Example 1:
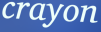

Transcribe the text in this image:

crayon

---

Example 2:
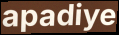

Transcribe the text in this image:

apadiye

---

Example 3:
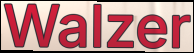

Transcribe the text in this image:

Walzer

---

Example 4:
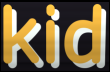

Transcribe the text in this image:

kid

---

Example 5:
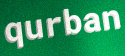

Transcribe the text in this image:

qurban